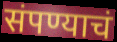
संपण्याचं